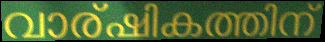
വാര്ഷികത്തിന്